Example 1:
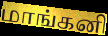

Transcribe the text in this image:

மாங்கனி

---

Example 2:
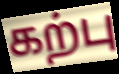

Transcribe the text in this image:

கற்பு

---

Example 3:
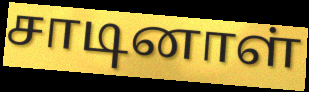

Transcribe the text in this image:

சாடினாள்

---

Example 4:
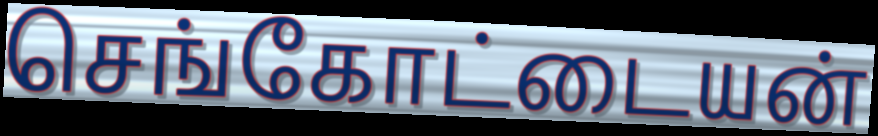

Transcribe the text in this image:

செங்கோட்டையன்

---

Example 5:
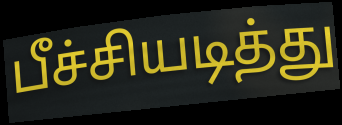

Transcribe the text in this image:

பீச்சியடித்து